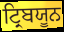
ਟ੍ਰਿਬਯੂਨ